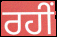
ਰਹੀਂ